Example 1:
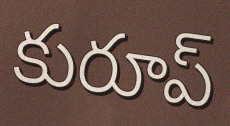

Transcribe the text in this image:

కురూప్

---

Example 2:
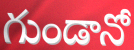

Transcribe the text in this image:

గుండానో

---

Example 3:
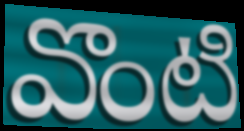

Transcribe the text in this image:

వొంటి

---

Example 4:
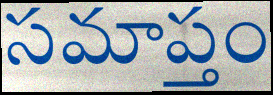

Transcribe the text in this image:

సమాప్తం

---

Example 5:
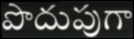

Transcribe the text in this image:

పొదుపుగా